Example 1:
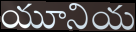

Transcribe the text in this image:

యూనియ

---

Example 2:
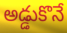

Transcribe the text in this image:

అడ్డుకొనే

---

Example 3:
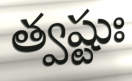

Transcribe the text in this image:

త్వష్టుః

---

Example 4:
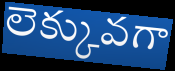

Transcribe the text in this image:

లెక్కువగా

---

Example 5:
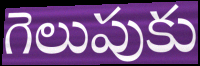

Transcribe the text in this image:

గెలుపుకు